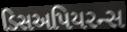
ડિસઅપિયરન્સ